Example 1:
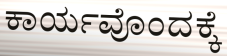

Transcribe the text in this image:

ಕಾರ್ಯವೊಂದಕ್ಕೆ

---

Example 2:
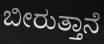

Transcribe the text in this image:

ಬೀರುತ್ತಾನೆ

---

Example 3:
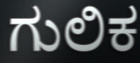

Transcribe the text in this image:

ಗುಲಿಕ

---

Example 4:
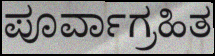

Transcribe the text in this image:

ಪೂರ್ವಾಗ್ರಹಿತ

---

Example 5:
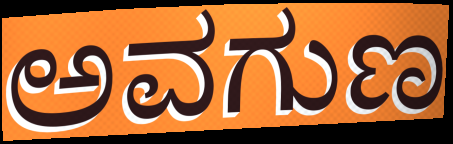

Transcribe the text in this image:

ಅವಗುಣ